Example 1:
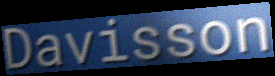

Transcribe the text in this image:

Davisson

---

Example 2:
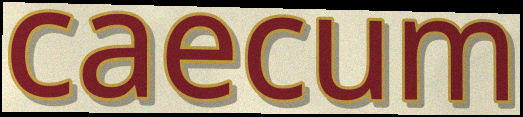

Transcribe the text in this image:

caecum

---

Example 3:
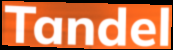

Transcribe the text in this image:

Tandel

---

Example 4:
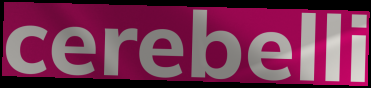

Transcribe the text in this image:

cerebelli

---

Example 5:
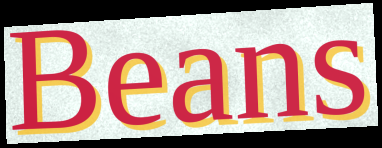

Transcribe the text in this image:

Beans